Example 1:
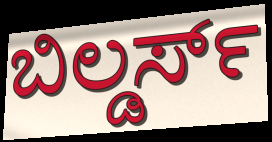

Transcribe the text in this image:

ಬಿಲ್ಡರ್ಸ್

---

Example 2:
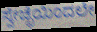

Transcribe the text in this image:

ಸ್ವೇಚ್ಛೆಯಿಂದಲೇ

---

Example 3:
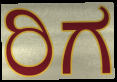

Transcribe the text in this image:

ರಿಗ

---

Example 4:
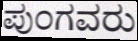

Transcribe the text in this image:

ಪುಂಗವರು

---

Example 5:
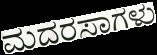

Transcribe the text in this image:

ಮದರಸಾಗಳು